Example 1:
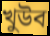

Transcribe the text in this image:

খুউব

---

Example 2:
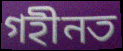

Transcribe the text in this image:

গহীনত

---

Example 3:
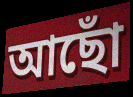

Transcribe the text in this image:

আছোঁ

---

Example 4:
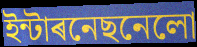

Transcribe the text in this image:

ইন্টাৰনেছনেলো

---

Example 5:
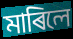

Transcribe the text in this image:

মাৰিলে